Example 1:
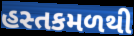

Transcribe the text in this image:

હસ્તકમળથી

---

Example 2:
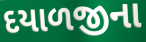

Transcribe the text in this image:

દયાળજીના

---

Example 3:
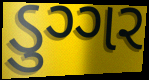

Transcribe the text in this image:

ડુગ્ગર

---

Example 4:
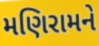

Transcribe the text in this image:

મણિરામને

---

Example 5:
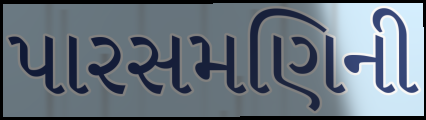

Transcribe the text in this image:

પારસમણિની